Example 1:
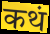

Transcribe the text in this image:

कथं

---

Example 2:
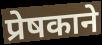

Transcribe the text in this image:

प्रेषकाने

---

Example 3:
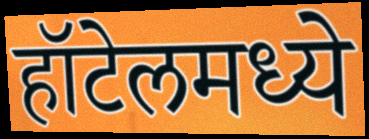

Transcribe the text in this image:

हॉटेलमध्ये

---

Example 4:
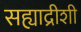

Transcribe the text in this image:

सह्याद्रीशी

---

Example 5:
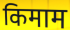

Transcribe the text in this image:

किमाम